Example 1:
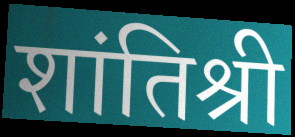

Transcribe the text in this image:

शांतिश्री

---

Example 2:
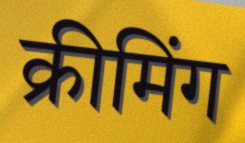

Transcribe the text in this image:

क्रीमिंग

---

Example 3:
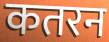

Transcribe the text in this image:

कतरन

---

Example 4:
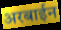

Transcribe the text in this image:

अरबाईन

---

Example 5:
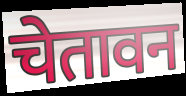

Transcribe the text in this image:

चेतावन